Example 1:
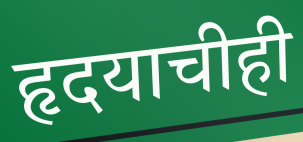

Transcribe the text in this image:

हृदयाचीही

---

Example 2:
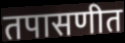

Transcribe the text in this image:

तपासणीत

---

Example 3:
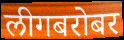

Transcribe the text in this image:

लीगबरोबर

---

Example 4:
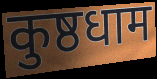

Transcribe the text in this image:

कुष्ठधाम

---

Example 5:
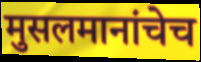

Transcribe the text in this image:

मुसलमानांचेच